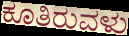
ಕೂತಿರುವಳು